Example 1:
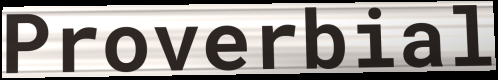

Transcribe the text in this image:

Proverbial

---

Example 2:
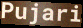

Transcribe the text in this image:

Pujari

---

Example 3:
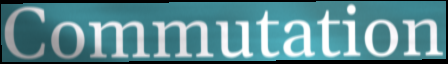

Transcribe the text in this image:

Commutation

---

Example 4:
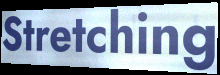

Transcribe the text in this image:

Stretching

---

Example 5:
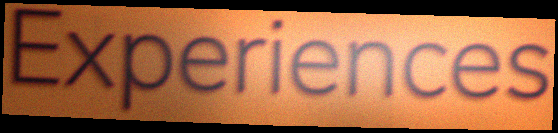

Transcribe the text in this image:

Experiences